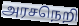
அரசநெறி